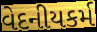
વેદનીયકર્મ